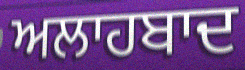
ਅਲਾਹਬਾਦ